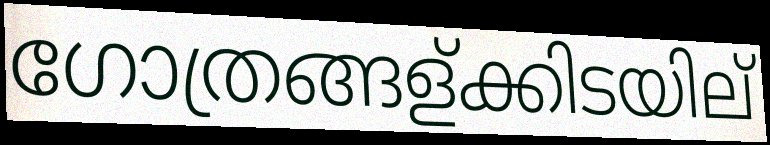
ഗോത്രങ്ങള്ക്കിടയില്